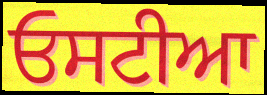
ਓਸਟੀਆ